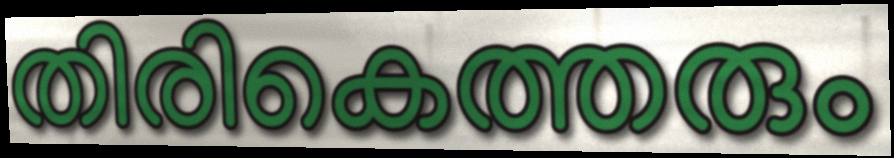
തിരികെത്തരും